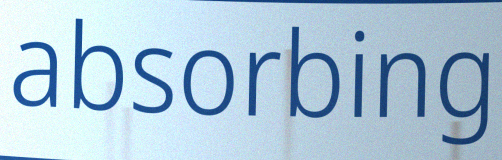
absorbing